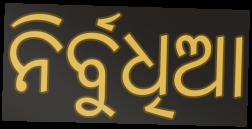
ନିର୍ବୁଧିଆ